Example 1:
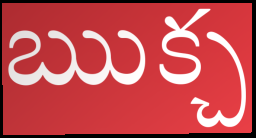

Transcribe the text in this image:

ఋక్చ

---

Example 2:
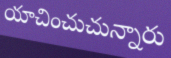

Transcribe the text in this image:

యాచించుచున్నారు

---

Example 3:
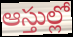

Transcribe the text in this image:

ఆస్తుల్లో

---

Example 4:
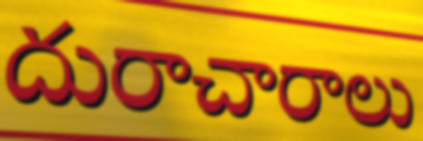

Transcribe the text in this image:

దురాచారాలు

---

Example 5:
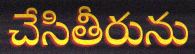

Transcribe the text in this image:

చేసితీరును